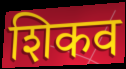
शिकव